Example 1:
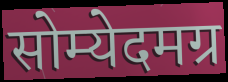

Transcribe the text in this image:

सोम्येदमग्र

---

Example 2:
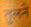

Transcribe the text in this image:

तुलने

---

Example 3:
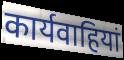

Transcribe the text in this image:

कार्यवाहियां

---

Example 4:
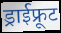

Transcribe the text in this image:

ड्राईफ्रूट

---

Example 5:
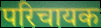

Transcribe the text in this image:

परिचायक